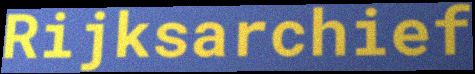
Rijksarchief